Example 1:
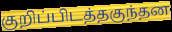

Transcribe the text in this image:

குறிப்பிடத்தகுந்தன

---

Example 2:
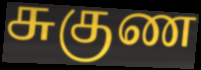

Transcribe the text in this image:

சுகுண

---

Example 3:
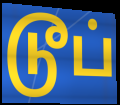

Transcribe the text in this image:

டூப்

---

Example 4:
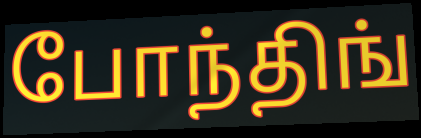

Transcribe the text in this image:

போந்திங்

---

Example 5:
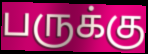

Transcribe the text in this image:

பருக்கு